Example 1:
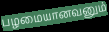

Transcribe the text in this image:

பழமையானவனும்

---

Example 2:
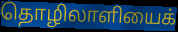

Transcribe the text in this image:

தொழிலாளியைக்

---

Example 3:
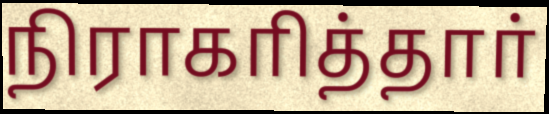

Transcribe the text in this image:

நிராகரித்தார்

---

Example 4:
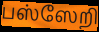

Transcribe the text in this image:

பஸ்ஸேறி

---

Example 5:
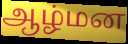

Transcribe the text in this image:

ஆழ்மன